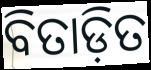
ବିତାଡ଼ିତ